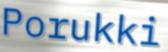
Porukki